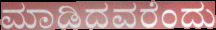
ಮಾಡಿದವರೆಂದು